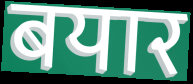
बयार